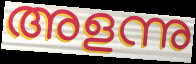
അളന്നു